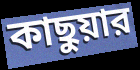
কাছুয়ার